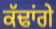
ਕੱਢਾਂਗੇ